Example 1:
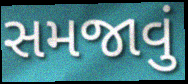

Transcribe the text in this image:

સમજાવું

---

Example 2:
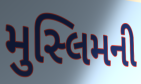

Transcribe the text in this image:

મુસ્લિમની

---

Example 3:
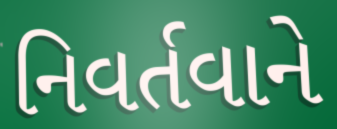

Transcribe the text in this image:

નિવર્તવાને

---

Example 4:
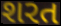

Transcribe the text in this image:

શરત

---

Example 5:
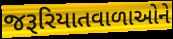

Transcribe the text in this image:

જરૂરિયાતવાળાઓને